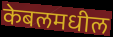
केबलमधील